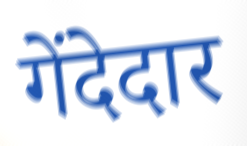
गेंदेदार